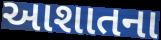
આશાતના